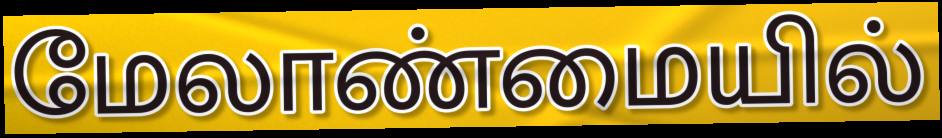
மேலாண்மையில்